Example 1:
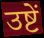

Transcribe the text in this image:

उष्टें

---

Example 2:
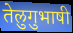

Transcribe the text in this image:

तेलुगुभाषी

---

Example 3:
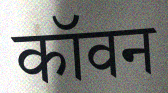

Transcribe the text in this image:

कॉवन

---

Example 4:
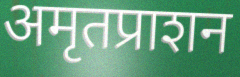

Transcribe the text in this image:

अमृतप्राशन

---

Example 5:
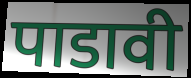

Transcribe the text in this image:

पाडावी